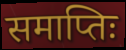
समाप्तिः